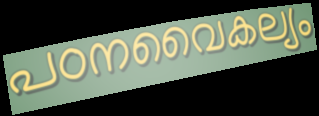
പഠനവൈകല്യം